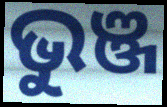
ଭୁଞ୍ଜ